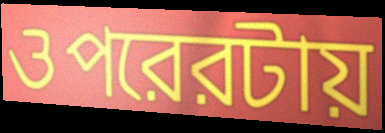
ওপরেরটায়